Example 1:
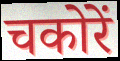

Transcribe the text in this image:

चकोरें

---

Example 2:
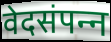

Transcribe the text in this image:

वेदसंपन्न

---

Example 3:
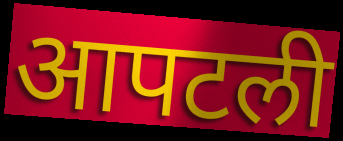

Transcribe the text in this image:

आपटली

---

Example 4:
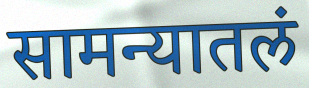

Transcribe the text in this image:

सामन्यातलं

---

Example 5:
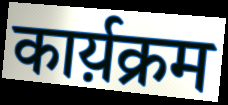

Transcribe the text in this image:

कार्य़क्रम